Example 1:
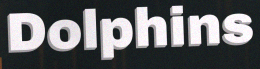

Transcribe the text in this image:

Dolphins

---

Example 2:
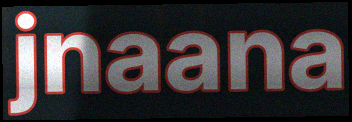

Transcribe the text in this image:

jnaana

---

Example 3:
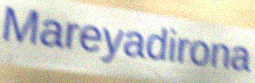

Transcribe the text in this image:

Mareyadirona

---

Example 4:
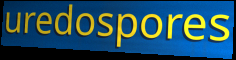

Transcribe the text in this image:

uredospores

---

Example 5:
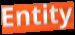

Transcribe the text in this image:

Entity